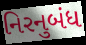
નિરનુબંધ